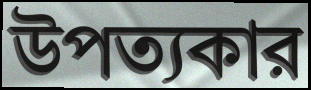
উপত্যকার